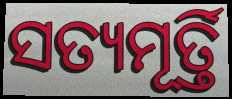
ସତ୍ୟମୂର୍ତ୍ତି